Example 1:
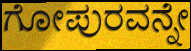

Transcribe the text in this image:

ಗೋಪುರವನ್ನೇ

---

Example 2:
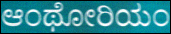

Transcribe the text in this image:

ಆಂಥೋರಿಯಂ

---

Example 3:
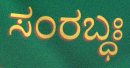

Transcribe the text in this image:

ಸಂರಬ್ಧಃ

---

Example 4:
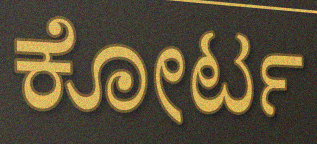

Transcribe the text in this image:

ಕೋರ್ಟ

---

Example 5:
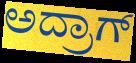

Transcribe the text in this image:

ಅದ್ರಾಗ್